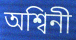
অশ্বিনী